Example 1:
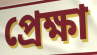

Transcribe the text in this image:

প্ৰেক্ষা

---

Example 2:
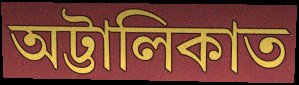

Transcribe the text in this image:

অট্টালিকাত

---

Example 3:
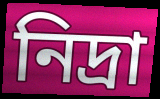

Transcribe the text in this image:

নিদ্ৰা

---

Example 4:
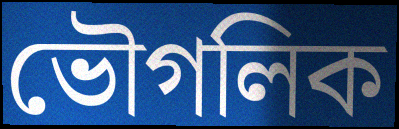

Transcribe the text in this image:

ভৌগলিক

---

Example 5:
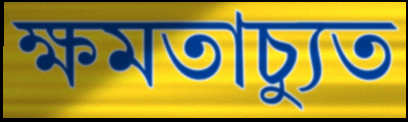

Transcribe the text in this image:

ক্ষমতাচ্যুত